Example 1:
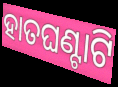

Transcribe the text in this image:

ହାତଘଣ୍ଟାଟି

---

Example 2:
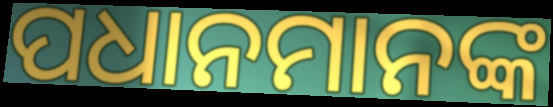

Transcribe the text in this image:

ପଧାନମାନଙ୍କ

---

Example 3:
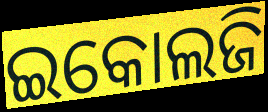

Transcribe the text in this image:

ଇକୋଲଜି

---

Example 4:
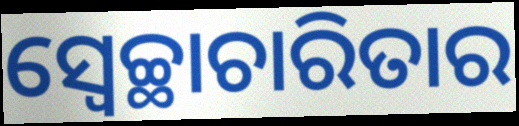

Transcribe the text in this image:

ସ୍ୱେଚ୍ଛାଚାରିତାର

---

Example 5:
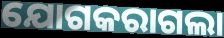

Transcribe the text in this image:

ଯୋଗକରାଗଲା